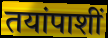
तयांपाशीं